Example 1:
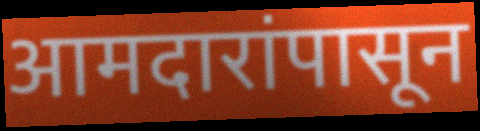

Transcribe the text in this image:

आमदारांपासून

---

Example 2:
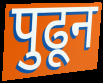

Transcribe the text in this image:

पुढून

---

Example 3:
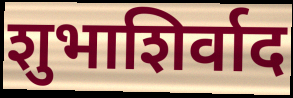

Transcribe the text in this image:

शुभाशिर्वाद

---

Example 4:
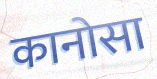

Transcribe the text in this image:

कानोसा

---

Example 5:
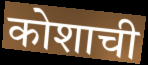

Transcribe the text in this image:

कोशाची